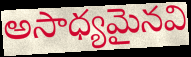
అసాధ్యమైనవి